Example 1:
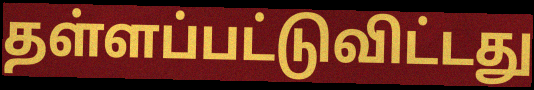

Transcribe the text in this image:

தள்ளப்பட்டுவிட்டது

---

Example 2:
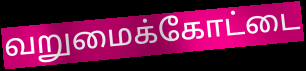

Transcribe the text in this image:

வறுமைக்கோட்டை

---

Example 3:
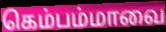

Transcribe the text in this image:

கெம்பம்மாவை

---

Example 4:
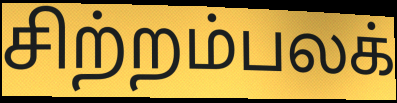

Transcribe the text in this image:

சிற்றம்பலக்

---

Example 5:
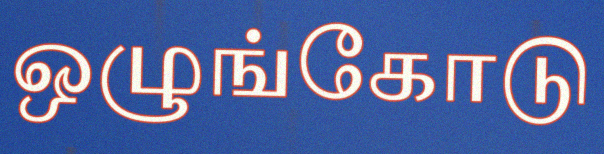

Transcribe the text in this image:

ஒழுங்கோடு